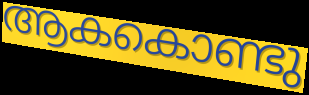
ആകകൊണ്ടു